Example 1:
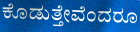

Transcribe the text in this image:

ಕೊಡುತ್ತೇವೆಂದರೂ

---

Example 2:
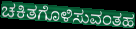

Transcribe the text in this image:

ಚಕಿತಗೊಳಿಸುವಂತಹ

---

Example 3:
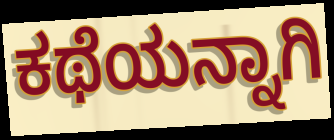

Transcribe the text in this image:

ಕಥೆಯನ್ನಾಗಿ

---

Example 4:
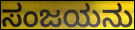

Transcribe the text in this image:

ಸಂಜಯನು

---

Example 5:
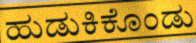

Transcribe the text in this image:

ಹುಡುಕಿಕೊಂಡು